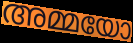
അമ്മയോ